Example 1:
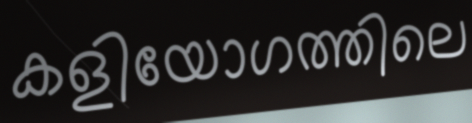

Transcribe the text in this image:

കളിയോഗത്തിലെ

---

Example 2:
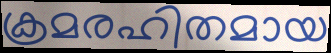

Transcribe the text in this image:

ക്രമരഹിതമായ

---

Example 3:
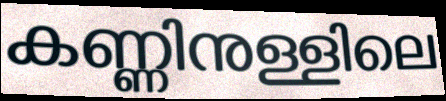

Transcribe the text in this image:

കണ്ണിനുള്ളിലെ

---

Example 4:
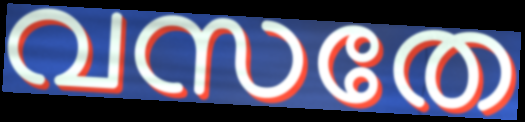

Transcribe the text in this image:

വസതേ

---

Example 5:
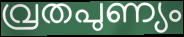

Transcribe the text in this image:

വ്രതപുണ്യം